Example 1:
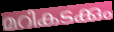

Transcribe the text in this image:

മറികടക്കും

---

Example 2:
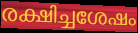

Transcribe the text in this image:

രക്ഷിച്ചശേഷം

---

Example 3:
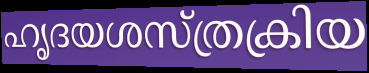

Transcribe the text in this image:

ഹൃദയശസ്ത്രക്രിയ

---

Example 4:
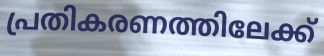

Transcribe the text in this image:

പ്രതികരണത്തിലേക്ക്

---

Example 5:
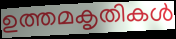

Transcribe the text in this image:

ഉത്തമകൃതികൾ